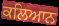
ਕਲਿਆਨ